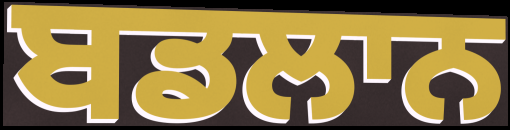
ਬਡਲਾਨ